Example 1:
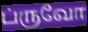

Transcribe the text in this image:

ப்ருவோ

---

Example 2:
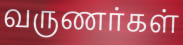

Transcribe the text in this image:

வருணர்கள்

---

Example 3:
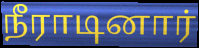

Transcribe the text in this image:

நீராடினார்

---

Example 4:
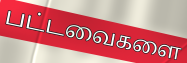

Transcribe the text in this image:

பட்டவைகளை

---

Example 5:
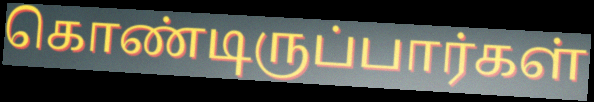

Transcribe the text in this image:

கொண்டிருப்பார்கள்